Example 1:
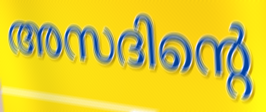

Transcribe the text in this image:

അസദിന്റെ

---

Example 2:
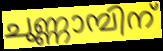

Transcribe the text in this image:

ചുണ്ണാമ്പിന്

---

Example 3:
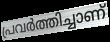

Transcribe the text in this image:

പ്രവർത്തിച്ചാണ്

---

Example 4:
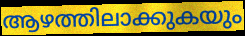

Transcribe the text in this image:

ആഴത്തിലാക്കുകയും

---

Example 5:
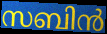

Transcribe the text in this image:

സബിൻ